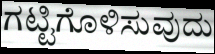
ಗಟ್ಟಿಗೊಳಿಸುವುದು